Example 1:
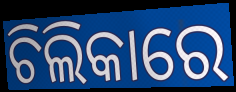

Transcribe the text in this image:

ଚିଲିକାରେ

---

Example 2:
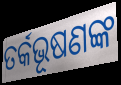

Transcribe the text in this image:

ତର୍କଭୂଷଣଙ୍କ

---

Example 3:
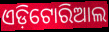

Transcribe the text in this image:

ଏଡ଼ିଟୋରିଆଲ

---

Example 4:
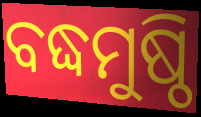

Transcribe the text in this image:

ବଦ୍ଧମୁଷ୍ଠି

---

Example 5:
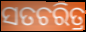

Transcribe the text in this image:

ସତଚରିତ୍ର